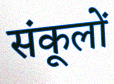
संकूलों